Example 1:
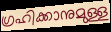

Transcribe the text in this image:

ഗ്രഹിക്കാനുമുള്ള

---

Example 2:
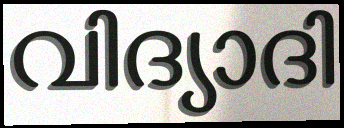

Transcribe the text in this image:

വിദ്യാദി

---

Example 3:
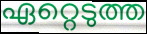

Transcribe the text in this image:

ഏറ്റെടുത്ത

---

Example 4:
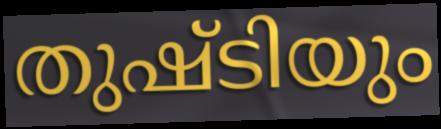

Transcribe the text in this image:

തുഷ്ടിയും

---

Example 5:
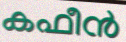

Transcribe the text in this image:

കഫീൻ